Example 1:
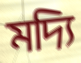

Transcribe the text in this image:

মদ্যি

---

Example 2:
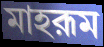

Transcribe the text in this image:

মাহরূম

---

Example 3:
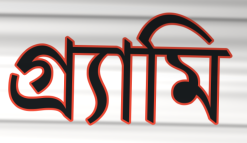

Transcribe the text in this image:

গ্র্যামি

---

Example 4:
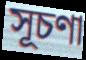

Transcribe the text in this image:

সূচণা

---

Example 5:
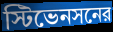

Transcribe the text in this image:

স্টিভেনসনের